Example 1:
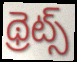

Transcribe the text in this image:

థ్రెట్స్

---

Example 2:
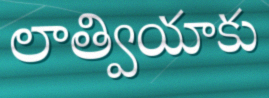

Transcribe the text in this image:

లాత్వియాకు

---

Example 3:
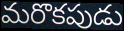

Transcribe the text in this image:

మరొకపుడు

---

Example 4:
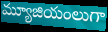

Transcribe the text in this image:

మ్యూజియంలుగా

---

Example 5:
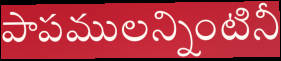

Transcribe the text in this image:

పాపములన్నింటినీ